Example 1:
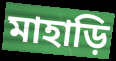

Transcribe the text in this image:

মাহাড়ি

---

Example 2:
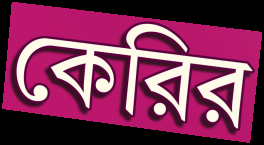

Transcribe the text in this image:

কেরির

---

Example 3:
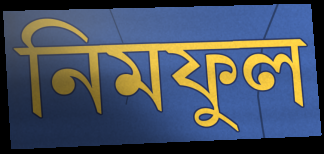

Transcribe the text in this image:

নিমফুল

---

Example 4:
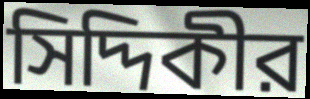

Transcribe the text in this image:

সিদ্দিকীর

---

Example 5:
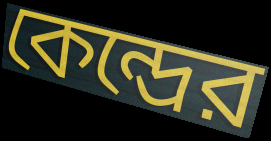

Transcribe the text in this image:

কেন্দ্রের